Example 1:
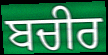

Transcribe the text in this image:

ਬਚੀਰ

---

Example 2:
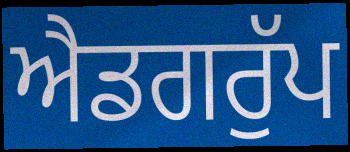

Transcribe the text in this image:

ਐਡਗਰੁੱਪ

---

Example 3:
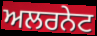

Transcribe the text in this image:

ਅਲਰਨੇਟ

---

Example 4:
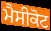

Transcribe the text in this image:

ਮੈਸੀਕੋਟ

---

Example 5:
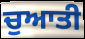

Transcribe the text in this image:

ਚੁਆਤੀ